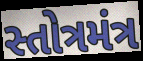
સ્તોત્રમંત્ર